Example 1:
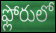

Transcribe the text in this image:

ఫ్లోరులో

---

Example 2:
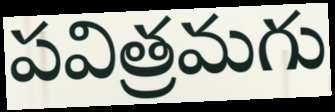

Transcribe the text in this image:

పవిత్రమగు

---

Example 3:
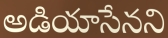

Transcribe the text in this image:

అడియాసేనని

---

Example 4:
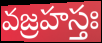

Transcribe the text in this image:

వజ్రహస్తః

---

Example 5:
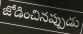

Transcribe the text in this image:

జోడించినప్పుడు